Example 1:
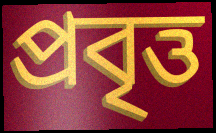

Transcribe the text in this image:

প্ৰবৃত্ত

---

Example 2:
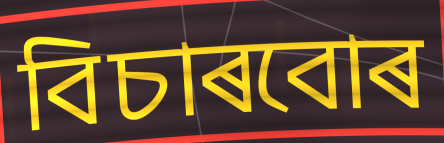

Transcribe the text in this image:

বিচাৰবোৰ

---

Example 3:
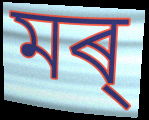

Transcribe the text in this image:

মৰ্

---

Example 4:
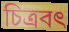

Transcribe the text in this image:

চিত্ৰবৎ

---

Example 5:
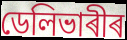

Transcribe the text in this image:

ডেলিভাৰীৰ